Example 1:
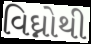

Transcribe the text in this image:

વિઘ્નોથી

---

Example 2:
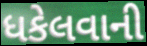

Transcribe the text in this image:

ધકેલવાની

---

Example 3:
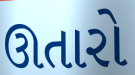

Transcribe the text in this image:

ઊતારો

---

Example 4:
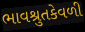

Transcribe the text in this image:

ભાવશ્રુતકેવળી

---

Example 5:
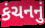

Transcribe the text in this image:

કંચનનું